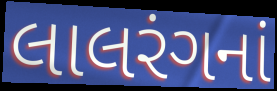
લાલરંગનાં